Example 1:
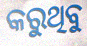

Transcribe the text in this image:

କରୁଥିବୁ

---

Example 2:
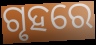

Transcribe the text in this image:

ଗୃହରେ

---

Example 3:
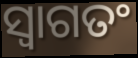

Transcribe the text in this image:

ସ୍ୱାଗତଂ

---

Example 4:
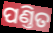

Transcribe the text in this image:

ପଣ୍ତିତ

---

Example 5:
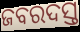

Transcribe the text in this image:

ଜବରଦସ୍ତ